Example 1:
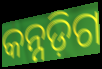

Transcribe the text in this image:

କନ୍ନଡ଼ିଗ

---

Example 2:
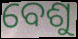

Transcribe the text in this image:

ବେଶୁ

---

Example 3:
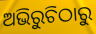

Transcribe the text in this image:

ଅଭିରୁଚିଠାରୁ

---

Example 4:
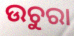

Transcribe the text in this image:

ଉଚୁରା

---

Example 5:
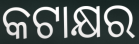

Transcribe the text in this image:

କଟାକ୍ଷର